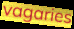
vagaries